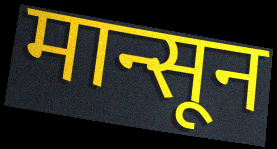
मान्सून